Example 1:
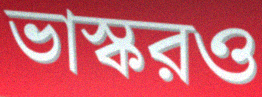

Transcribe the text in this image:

ভাস্করও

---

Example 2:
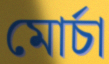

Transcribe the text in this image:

মোর্চা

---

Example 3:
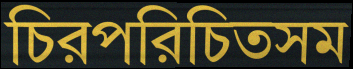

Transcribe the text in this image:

চিরপরিচিতসম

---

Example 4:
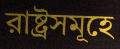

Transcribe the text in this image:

রাষ্ট্রসমূহে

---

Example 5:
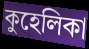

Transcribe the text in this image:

কুহেলিকা